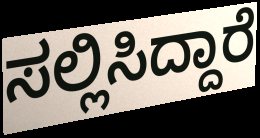
ಸಲ್ಲಿಸಿದ್ದಾರೆ